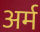
अर्म